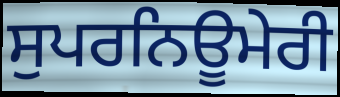
ਸੁਪਰਨਿਊਮੇਰੀ